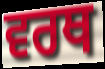
ਵਰਥ